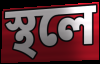
স্থলে